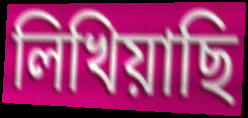
লিখিয়াছি